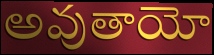
అవుతాయో